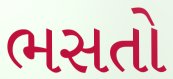
ભસતો